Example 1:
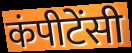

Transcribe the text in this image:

कंपीटेंसी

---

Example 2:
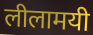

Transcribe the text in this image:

लीलामयी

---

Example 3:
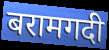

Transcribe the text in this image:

बरामगदी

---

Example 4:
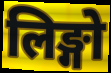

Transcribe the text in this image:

लिङ्गो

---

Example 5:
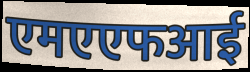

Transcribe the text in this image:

एमएएफआई